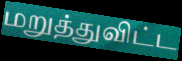
மறுத்துவிட்ட